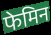
फेमिन